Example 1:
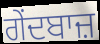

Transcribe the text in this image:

ਗੇਂਦਬਾਜ਼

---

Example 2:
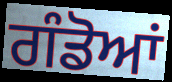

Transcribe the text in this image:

ਗੰਡੋਆਂ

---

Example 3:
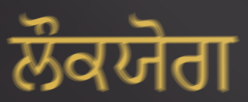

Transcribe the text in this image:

ਲੌਕਯੋਗ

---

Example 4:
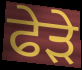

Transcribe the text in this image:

ਫੇੜੇ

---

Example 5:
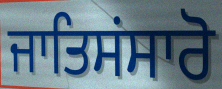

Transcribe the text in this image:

ਜਾਤਿਸਂਸਾਰੋ